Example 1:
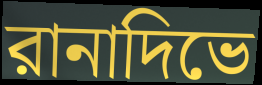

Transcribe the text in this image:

রানাদিভে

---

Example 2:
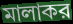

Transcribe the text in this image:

মালাকর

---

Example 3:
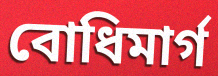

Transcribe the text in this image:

বোধিমার্গ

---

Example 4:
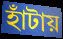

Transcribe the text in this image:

হাঁটায়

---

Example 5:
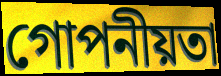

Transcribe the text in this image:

গোপনীয়তা